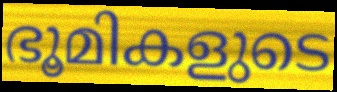
ഭൂമികളുടെ